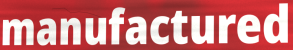
manufactured